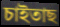
চাইতাছ